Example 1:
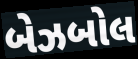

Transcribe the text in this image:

બેઝબોલ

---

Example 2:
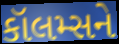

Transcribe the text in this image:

કૉલમ્સને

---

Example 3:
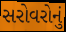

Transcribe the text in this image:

સરોવરોનું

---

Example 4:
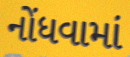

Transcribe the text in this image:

નોંધવામાં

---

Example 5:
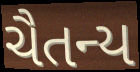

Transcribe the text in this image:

ચૈતન્ય